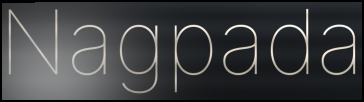
Nagpada